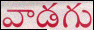
వాడగు